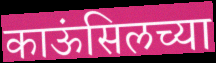
काऊंसिलच्या